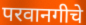
परवानगीचे